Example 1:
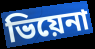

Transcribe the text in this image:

ভিয়েনা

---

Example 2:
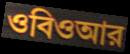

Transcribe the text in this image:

ওবিওআর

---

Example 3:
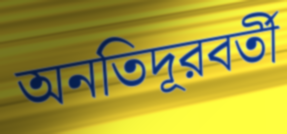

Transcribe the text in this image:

অনতিদূরবর্তী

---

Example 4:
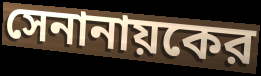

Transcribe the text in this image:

সেনানায়কের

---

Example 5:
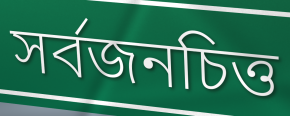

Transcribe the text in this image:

সর্বজনচিত্ত